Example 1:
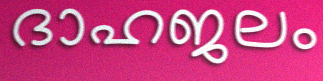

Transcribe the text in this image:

ദാഹജലം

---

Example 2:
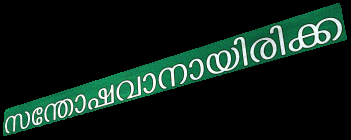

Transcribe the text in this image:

സന്തോഷവാനായിരിക്ക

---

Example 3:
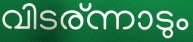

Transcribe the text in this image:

വിടര്ന്നാടും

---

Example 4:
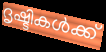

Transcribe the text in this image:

ദൃഷ്ടികൾക്ക്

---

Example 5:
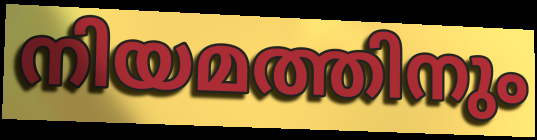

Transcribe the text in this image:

നിയമത്തിനും